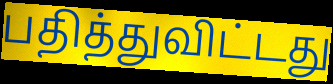
பதித்துவிட்டது